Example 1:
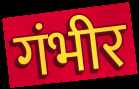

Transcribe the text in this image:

गंभीर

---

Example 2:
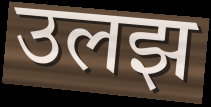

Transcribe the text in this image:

उलझ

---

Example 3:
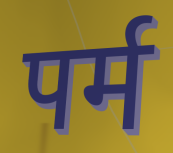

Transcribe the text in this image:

पर्म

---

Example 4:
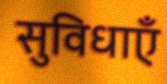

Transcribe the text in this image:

सुविधाएँ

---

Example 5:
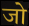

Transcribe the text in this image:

जो